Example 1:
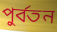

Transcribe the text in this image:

পুর্বতন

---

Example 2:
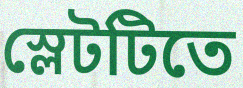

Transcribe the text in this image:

স্লেটটিতে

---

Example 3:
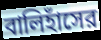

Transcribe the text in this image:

বালিহাঁসের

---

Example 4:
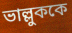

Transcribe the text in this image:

ভাল্লুককে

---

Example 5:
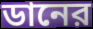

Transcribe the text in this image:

ডানের